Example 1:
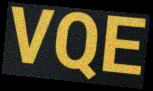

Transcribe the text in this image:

VQE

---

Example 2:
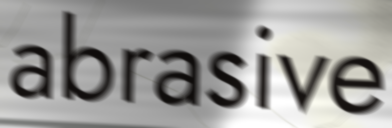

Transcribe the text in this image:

abrasive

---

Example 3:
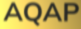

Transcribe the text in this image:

AQAP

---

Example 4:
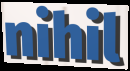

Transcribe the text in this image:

nihil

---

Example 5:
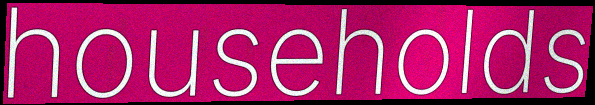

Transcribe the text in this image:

households